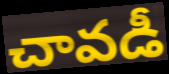
చావడీ